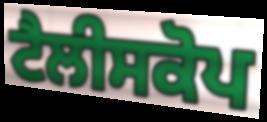
ਟੈਲੀਸਕੋਪ